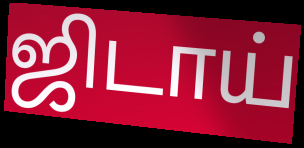
ஜிடாய்